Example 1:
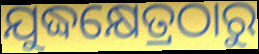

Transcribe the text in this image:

ଯୁଦ୍ଧକ୍ଷେତ୍ରଠାରୁ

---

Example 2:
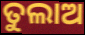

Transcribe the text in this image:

ତୁଲାଅ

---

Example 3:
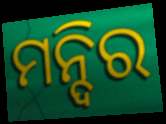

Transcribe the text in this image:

ମନ୍ଦିର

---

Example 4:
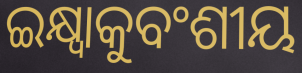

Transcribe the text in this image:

ଇକ୍ଷ୍ୱାକୁବଂଶୀୟ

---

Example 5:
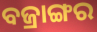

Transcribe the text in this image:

ବଜ୍ରାଙ୍ଗର